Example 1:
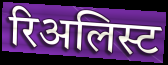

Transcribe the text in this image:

रिअलिस्ट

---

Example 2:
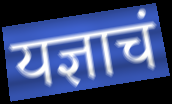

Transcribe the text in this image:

यज्ञाचं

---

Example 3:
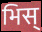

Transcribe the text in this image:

भिस्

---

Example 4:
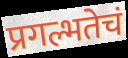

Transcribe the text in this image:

प्रगल्भतेचं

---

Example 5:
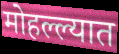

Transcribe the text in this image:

मोहल्ल्यात